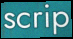
scrip